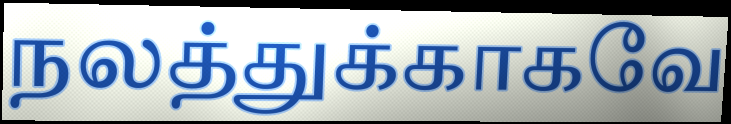
நலத்துக்காகவே